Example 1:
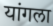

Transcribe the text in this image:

यांगला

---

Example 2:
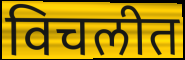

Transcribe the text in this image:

विचलीत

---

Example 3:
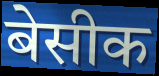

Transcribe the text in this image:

बेसीक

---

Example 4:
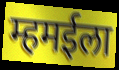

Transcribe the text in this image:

म्हमईला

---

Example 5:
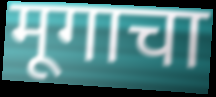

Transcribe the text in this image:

मूगाचा